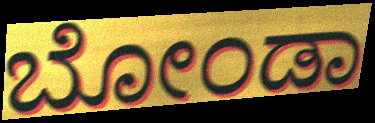
ಬೋಂಡಾ